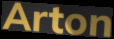
Arton